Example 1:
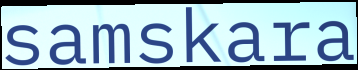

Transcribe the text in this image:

samskara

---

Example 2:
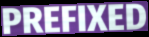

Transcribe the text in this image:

PREFIXED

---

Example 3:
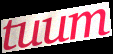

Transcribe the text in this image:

tuum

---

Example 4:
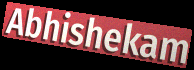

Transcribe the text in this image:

Abhishekam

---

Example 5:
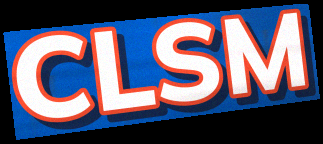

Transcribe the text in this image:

CLSM